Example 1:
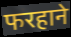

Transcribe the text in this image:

फरहाने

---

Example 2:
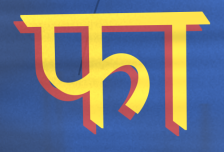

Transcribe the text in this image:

फा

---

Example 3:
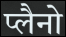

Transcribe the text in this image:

प्लैनो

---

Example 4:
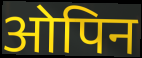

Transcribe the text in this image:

ओपिन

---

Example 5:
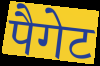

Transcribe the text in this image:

पैगेट